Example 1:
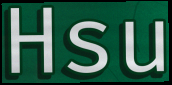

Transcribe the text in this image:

Hsu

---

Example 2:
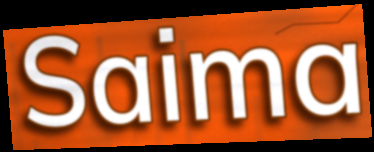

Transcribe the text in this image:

Saima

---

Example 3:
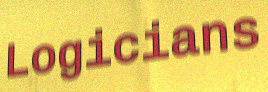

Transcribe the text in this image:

Logicians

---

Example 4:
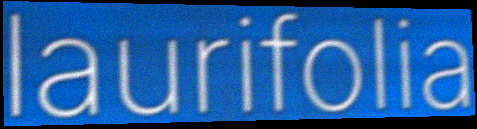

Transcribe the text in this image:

laurifolia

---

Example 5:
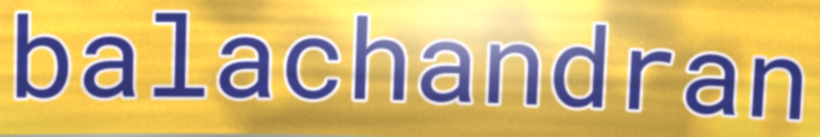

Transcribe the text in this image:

balachandran